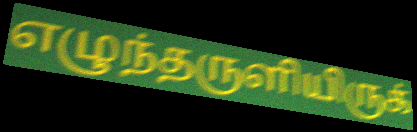
எழுந்தருளியிருக்